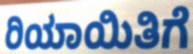
ರಿಯಾಯಿತಿಗೆ